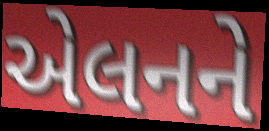
એલનને